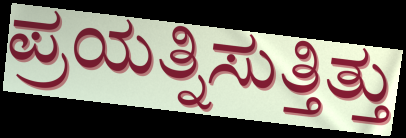
ಪ್ರಯತ್ನಿಸುತ್ತಿತ್ತು